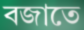
বজাতে